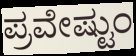
ಪ್ರವೇಷ್ಟುಂ